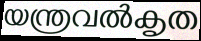
യന്ത്രവൽകൃത